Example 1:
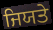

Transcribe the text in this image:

ਜਿਯਤੇ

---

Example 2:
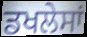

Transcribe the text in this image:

ਡਖਲੇਸਾਂ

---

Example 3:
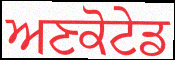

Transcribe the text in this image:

ਅਣਕੋਟੇਡ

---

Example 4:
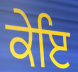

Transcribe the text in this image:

ਕੇਇ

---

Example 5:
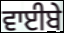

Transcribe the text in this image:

ਵਾਈਬੇ